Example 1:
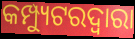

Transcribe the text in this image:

କମ୍ପ୍ୟୁଟରଦ୍ୱାରା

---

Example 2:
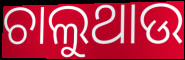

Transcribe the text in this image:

ଚାଲୁଥାଉ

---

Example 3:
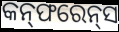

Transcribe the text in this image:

କନ୍‌ଫରେନ୍‌ସ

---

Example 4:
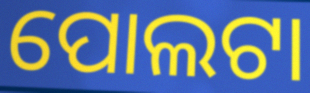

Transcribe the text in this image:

ପୋଲଟା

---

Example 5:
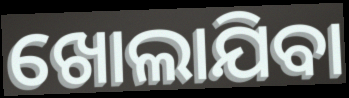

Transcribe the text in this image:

ଖୋଲାଯିବା